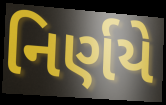
નિર્ણયે